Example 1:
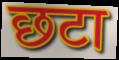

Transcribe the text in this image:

छटा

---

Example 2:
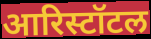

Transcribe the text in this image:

आरिस्टॉटल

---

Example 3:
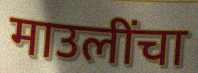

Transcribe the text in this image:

माउलींचा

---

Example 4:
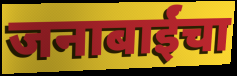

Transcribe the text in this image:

जनाबाईंचा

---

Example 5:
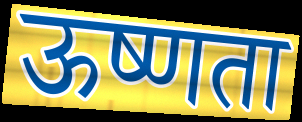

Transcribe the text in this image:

ऊष्णता